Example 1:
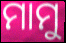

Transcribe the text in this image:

ମାମୁ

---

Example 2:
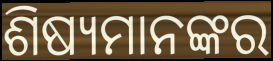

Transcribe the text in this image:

ଶିଷ୍ୟମାନଙ୍କର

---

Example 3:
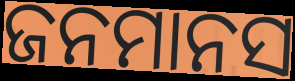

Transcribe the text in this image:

ଜନମାନସ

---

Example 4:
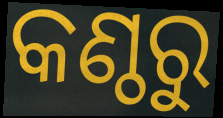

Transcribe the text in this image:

କଣ୍ଠରୁ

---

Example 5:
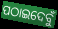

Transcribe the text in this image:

ପଠାଇଦେବୁଁ